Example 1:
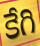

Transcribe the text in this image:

కేగి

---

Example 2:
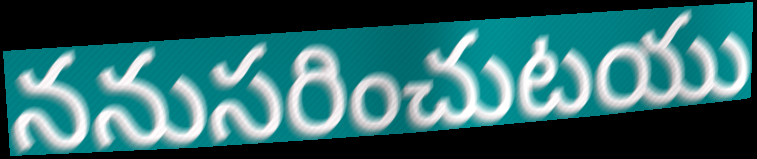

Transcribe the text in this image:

ననుసరించుటయు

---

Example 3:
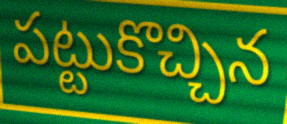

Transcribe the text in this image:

పట్టుకొచ్చిన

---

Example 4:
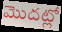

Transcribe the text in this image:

మొదట్లో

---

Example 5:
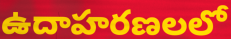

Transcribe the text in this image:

ఉదాహరణలలో